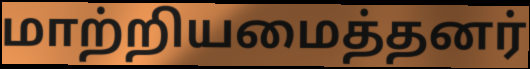
மாற்றியமைத்தனர்